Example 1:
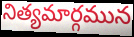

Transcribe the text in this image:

నిత్యమార్గమున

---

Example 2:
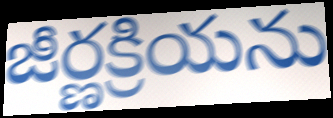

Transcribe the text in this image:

జీర్ణక్రియను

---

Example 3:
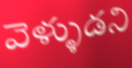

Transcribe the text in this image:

వెళ్ళుడని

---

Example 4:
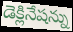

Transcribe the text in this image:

డెక్లినేషన్ను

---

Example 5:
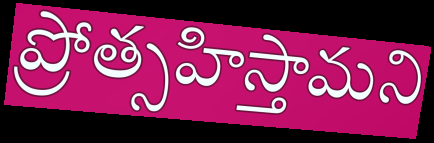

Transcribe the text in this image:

ప్రోత్సహిస్తామని